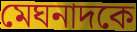
মেঘনাদকে